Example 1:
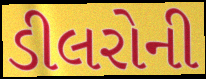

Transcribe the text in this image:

ડીલરોની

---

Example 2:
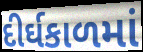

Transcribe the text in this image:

દીર્ઘકાળમાં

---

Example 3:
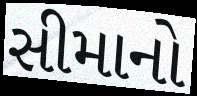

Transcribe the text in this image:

સીમાનો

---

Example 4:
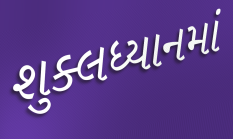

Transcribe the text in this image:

શુક્લધ્યાનમાં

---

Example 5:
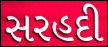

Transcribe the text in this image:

સરહદી